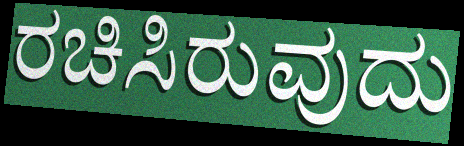
ರಚಿಸಿರುವುದು